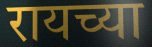
रायच्या